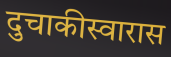
दुचाकीस्वारास